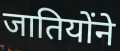
जातियोंने